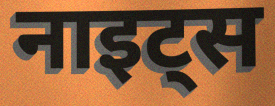
नाइट्स